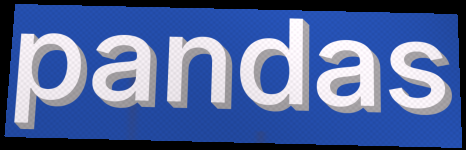
pandas